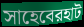
সাহেবেরহাট